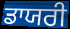
ਡਾਯਰੀ